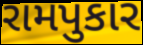
રામપુકાર